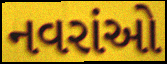
નવરાંઓ